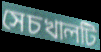
সেচখালটি